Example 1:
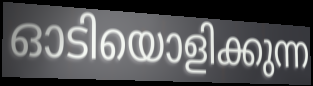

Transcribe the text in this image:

ഓടിയൊളിക്കുന്ന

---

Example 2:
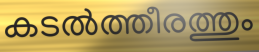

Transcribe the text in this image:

കടൽത്തീരത്തും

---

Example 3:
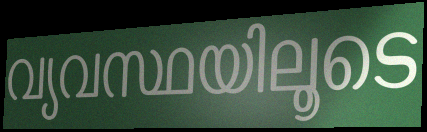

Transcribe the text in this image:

വ്യവസ്ഥയിലൂടെ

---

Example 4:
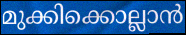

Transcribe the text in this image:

മുക്കിക്കൊല്ലാൻ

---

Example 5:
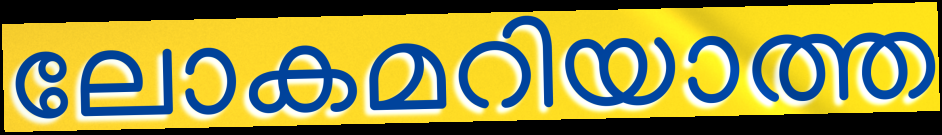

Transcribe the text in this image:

ലോകമറിയാത്ത